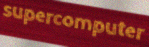
supercomputer